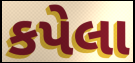
કપેલા